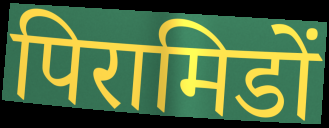
पिरामिडों